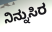
ನಿನ್ನುಸಿರ